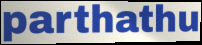
parthathu